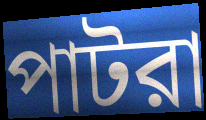
পাটরা